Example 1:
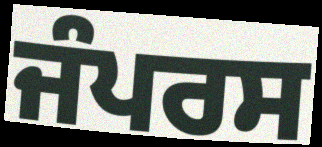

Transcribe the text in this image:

ਜੰਪਰਸ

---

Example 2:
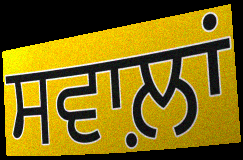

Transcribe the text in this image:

ਸਵਾਲ਼ਾਂ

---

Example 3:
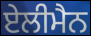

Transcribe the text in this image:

ਏਲੀਮੈਨ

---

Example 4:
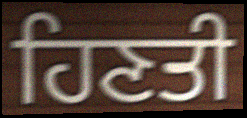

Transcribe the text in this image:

ਹਿਣਤੀ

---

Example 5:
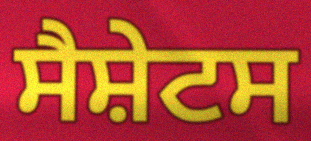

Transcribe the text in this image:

ਸੈਸ਼ੇਟਸ